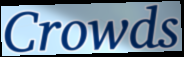
Crowds